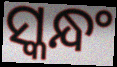
ସ୍କନ୍ଧଂ